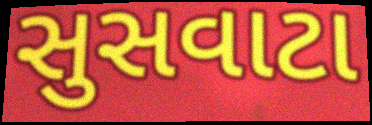
સુસવાટા